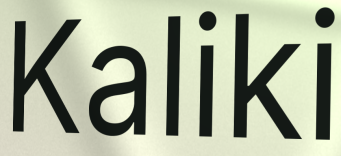
Kaliki